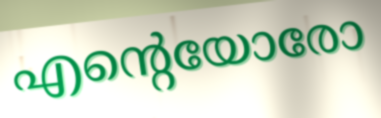
എന്റെയോരോ